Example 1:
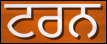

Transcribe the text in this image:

ਟਰਨ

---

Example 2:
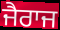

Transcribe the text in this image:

ਜੈਰਾਜ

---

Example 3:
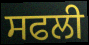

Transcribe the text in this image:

ਸਫਲੀ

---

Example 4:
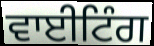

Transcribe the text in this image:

ਵਾਈਟਿੰਗ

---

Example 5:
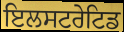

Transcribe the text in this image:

ਇਲਸਟਰੇਟਿਡ